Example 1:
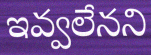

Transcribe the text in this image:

ఇవ్వలేనని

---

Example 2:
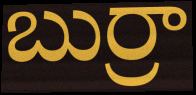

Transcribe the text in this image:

బుర్రా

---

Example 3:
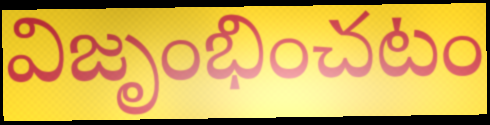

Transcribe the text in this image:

విజృంభించటం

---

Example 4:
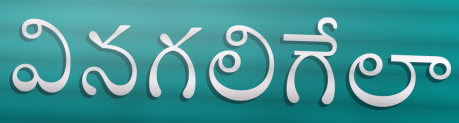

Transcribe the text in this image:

వినగలిగేలా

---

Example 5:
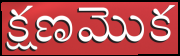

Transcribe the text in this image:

క్షణమొక